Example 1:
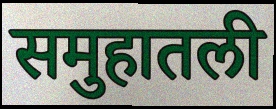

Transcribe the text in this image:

समुहातली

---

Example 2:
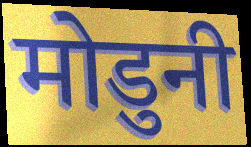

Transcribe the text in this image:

मोडुनी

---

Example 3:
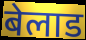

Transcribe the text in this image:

बेलाड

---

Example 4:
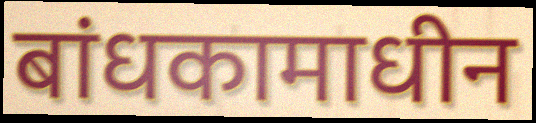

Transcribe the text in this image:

बांधकामाधीन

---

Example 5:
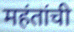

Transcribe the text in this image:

महंतांची